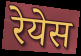
रेयेस